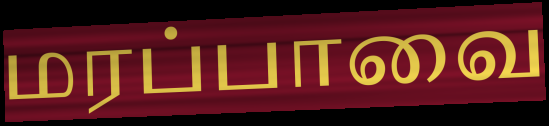
மரப்பாவை